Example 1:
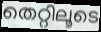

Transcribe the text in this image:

തെറ്റിലൂടെ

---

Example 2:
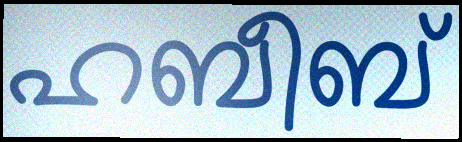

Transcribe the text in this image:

ഹബീബ്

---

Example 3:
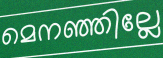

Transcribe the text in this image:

മെനഞ്ഞില്ലേ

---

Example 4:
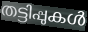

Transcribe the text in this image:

തട്ടിപ്പുകൾ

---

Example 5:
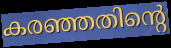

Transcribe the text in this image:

കരഞ്ഞതിന്റെ